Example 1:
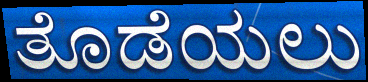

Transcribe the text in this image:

ತೊಡೆಯಲು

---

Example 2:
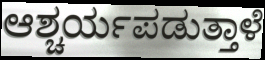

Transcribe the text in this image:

ಆಶ್ಚರ್ಯಪಡುತ್ತಾಳೆ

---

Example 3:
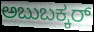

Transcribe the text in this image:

ಅಬುಬಕ್ಕರ್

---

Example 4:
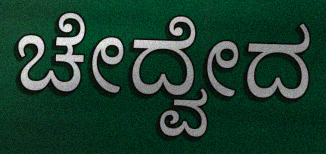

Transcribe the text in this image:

ಚೇದ್ವೇದ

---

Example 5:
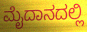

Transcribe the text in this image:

ಮೈದಾನದಲ್ಲಿ